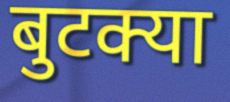
बुटक्या